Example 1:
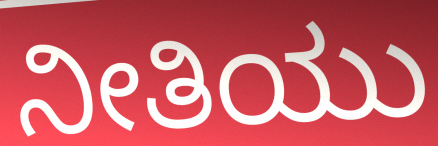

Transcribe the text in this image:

ನೀತಿಯು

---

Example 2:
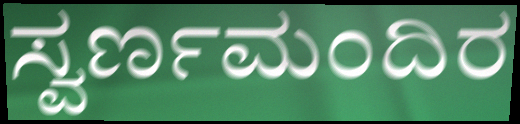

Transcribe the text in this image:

ಸ್ವರ್ಣಮಂದಿರ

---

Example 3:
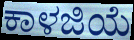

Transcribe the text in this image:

ಕಾಳಜಿಯೆ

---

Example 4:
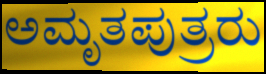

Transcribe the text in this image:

ಅಮೃತಪುತ್ರರು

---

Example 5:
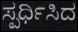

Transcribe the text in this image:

ಸ್ಪರ್ಧಿಸಿದ